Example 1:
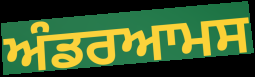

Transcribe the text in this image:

ਅੰਡਰਆਮਸ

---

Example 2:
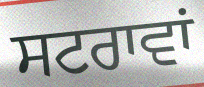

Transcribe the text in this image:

ਸਟਰਾਵਾਂ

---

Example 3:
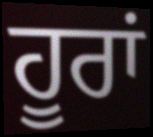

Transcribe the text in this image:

ਹੂਰਾਂ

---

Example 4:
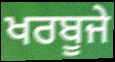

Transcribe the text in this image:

ਖਰਬੂਜੇ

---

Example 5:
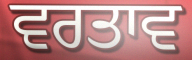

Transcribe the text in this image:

ਵਰਤਾਵ